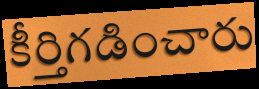
కీర్తిగడించారు